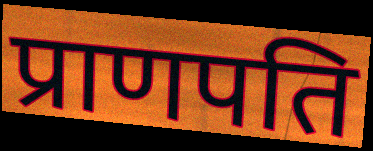
प्राणपति